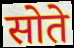
सोते